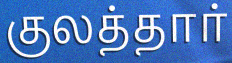
குலத்தார்